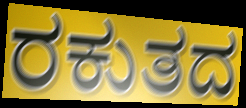
ರಕುತದ